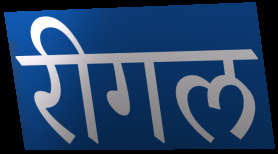
रीगल